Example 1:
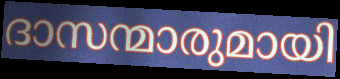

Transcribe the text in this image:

ദാസന്മാരുമായി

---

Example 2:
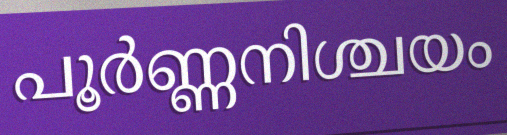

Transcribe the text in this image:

പൂർണ്ണനിശ്ചയം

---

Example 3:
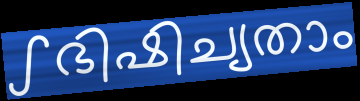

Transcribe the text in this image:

ഽഭിഷിച്യതാം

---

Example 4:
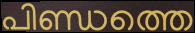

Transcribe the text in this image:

പിണ്ഡത്തെ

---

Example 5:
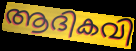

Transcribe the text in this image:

ആദികവി